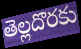
తెల్లదొరకు